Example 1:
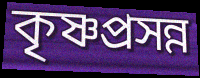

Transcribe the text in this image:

কৃষ্ণপ্রসন্ন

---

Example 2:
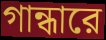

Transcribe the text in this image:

গান্ধারে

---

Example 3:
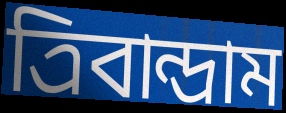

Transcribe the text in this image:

ত্রিবান্দ্রাম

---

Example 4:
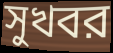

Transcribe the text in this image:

সুখবর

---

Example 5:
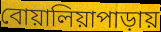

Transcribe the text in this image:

বোয়ালিয়াপাড়ায়